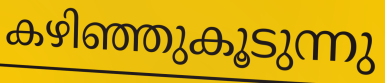
കഴിഞ്ഞുകൂടുന്നു